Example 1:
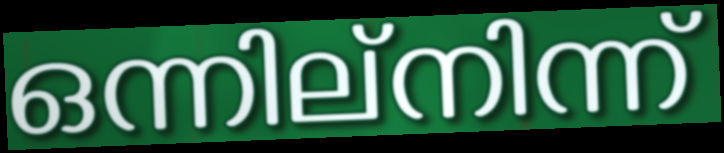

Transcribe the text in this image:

ഒന്നില്നിന്ന്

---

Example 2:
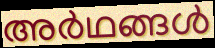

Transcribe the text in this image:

അർഥങ്ങൾ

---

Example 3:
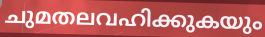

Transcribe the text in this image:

ചുമതലവഹിക്കുകയും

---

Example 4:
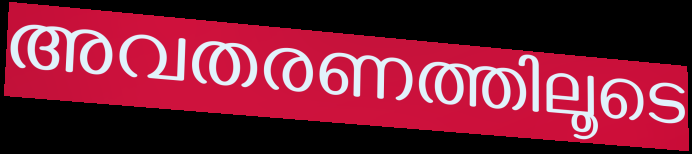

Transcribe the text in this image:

അവതരണത്തിലൂടെ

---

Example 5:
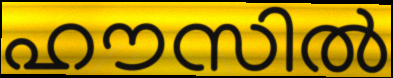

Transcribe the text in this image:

ഹൗസിൽ